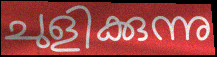
ചുളിക്കുന്നു